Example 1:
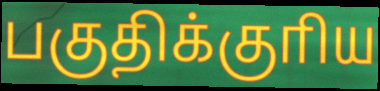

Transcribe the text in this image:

பகுதிக்குரிய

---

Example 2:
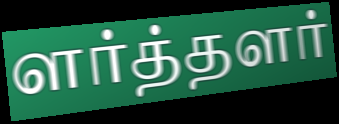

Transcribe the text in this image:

ளர்த்தளர்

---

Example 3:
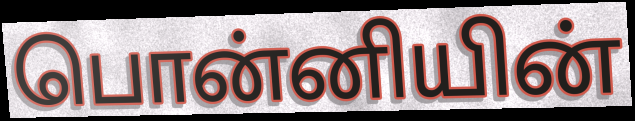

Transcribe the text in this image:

பொன்னியின்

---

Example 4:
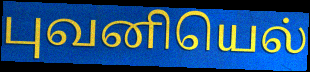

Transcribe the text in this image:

புவனியெல்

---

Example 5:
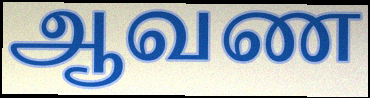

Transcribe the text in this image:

ஆவண